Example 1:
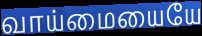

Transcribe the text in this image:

வாய்மையையே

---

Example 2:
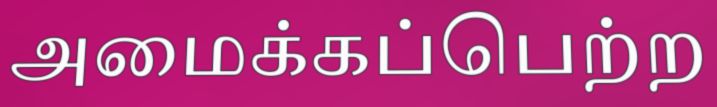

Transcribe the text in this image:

அமைக்கப்பெற்ற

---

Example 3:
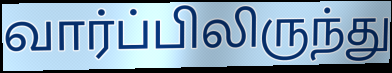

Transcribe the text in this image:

வார்ப்பிலிருந்து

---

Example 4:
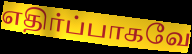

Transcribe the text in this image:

எதிர்ப்பாகவே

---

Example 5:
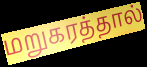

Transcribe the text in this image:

மறுகரத்தால்